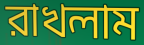
রাখলাম